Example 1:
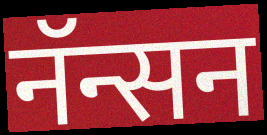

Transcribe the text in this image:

नॅन्सन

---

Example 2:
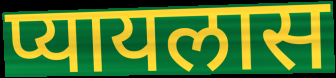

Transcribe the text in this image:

प्यायलास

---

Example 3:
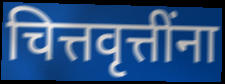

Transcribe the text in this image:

चित्तवृत्तींना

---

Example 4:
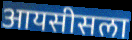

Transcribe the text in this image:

आयसीसला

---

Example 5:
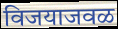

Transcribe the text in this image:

विजयाजवळ